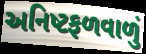
અનિષ્ટફળવાળું